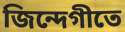
জিন্দেগীতে